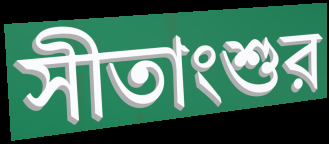
সীতাংশুর